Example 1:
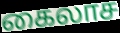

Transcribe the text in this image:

கைலாச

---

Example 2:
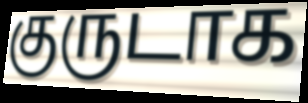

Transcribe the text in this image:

குருடாக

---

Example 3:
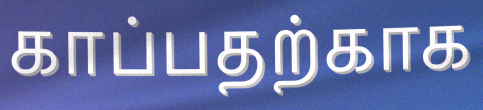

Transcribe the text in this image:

காப்பதற்காக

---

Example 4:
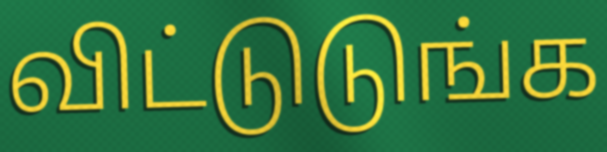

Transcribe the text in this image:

விட்டுடுங்க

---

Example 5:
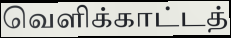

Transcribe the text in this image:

வெளிக்காட்டத்